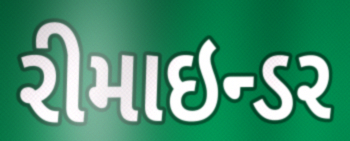
રીમાઇન્ડર